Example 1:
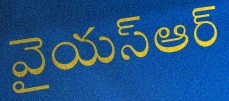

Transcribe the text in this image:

వైయస్ఆర్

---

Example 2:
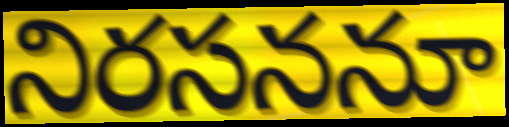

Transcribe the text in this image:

నిరసననూ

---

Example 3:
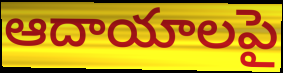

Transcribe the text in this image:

ఆదాయాలపై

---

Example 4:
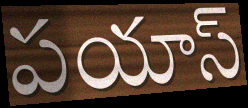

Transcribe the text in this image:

పయాస్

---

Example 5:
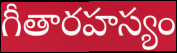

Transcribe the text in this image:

గీతారహస్యం